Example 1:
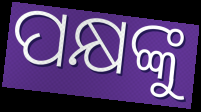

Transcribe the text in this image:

ପକ୍ଷଙ୍କୁ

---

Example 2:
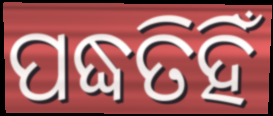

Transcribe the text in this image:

ପଦ୍ଧତିହିଁ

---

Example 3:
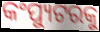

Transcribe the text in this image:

କଂପ୍ୟୁଟରକୁ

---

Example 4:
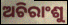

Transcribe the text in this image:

ଅଚିରାଂଶୁ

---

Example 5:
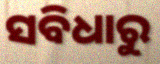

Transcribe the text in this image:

ସବିଧାରୁ